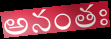
అనంతః